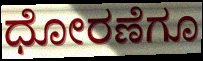
ಧೋರಣೆಗೂ